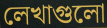
লেখাগুলো